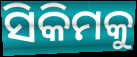
ସିକିମକୁ